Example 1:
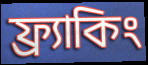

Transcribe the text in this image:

ফ্র্যাকিং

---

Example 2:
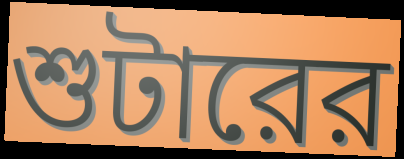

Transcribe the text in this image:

শুটারের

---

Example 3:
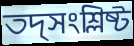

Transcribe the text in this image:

তদ্‌সংশ্লিষ্ট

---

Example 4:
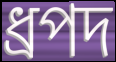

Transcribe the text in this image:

ধ্রপদ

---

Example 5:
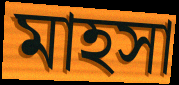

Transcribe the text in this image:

মাহসা